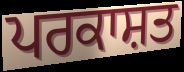
ਪਰਕਾਸ਼ਤ